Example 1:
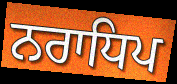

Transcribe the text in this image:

ਨਰਾਧਿਪ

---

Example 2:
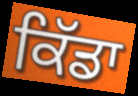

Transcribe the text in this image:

ਕਿੱਡਾ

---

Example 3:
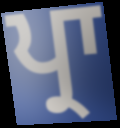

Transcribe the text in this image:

ਪ੍ਰਾ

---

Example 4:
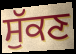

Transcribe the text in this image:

ਸੁੱਕਣ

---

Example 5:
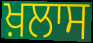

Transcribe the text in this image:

ਖ਼ਲਾਸ